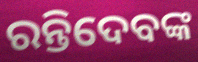
ରନ୍ତିଦେବଙ୍କ